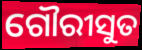
ଗୌରୀସୁତ